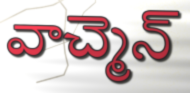
వాచ్మెన్